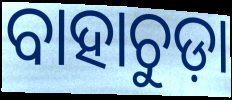
ବାହାଚୁଡ଼ା